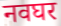
नवघर